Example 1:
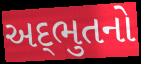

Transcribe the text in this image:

અદ્‌ભુતનો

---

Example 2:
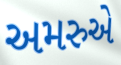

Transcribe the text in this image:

અમરુએ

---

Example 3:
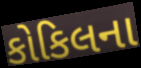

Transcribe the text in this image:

કોકિલના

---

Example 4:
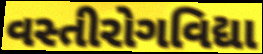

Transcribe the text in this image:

વસ્તીરોગવિદ્યા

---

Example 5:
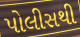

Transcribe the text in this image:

પોલીસથી